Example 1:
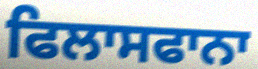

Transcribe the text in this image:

ਫਿਲਾਸਫਾਨਾ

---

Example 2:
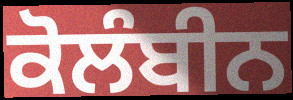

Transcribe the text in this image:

ਕੋਲੰਬੀਨ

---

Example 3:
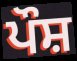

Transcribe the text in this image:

ਪੌਸ਼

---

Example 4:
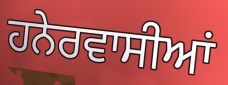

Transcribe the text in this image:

ਹਨੇਰਵਾਸੀਆਂ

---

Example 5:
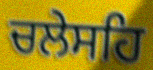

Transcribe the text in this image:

ਚਲੇਸਹਿ